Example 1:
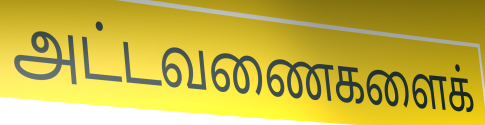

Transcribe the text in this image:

அட்டவணைகளைக்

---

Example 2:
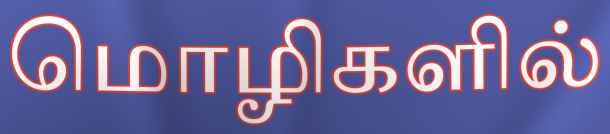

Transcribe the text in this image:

மொழிகளில்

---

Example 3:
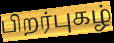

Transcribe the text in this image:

பிறர்புகழ்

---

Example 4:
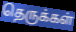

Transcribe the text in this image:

தெருக்கள்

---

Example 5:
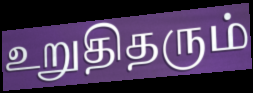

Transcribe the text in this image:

உறுதிதரும்